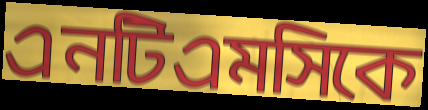
এনটিএমসিকে